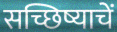
सच्छिष्याचें